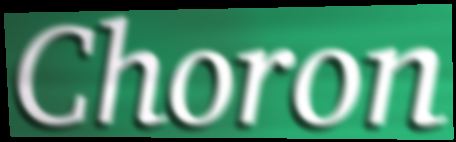
Choron